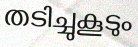
തടിച്ചുകൂടും